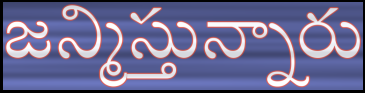
జన్మిస్తున్నారు